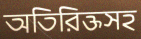
অতিরিক্তসহ